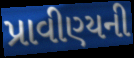
પ્રાવીણ્યની